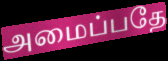
அமைப்பதே